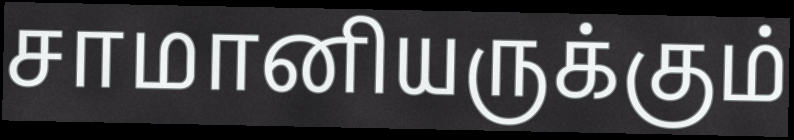
சாமானியருக்கும்